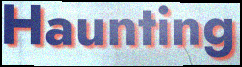
Haunting